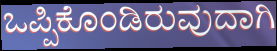
ಒಪ್ಪಿಕೊಂಡಿರುವುದಾಗಿ